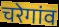
चरेगांव